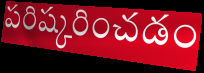
పరిష్కరించడం